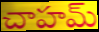
చాహమ్